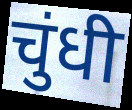
चुंधी